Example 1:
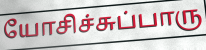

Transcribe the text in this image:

யோசிச்சுப்பாரு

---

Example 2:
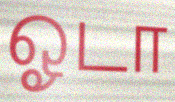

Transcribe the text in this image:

ஓடா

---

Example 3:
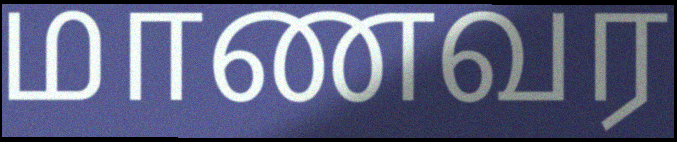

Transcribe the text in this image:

மாணவர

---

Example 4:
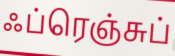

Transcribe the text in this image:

ஃப்ரெஞ்சுப்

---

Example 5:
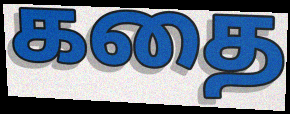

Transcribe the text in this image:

கதை